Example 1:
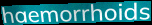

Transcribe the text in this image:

haemorrhoids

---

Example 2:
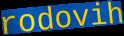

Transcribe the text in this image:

rodovih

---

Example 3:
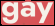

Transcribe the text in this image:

gay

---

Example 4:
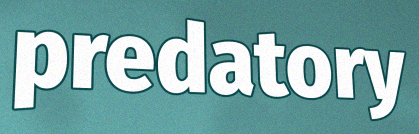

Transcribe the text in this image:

predatory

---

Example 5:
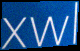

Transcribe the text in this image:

xwl